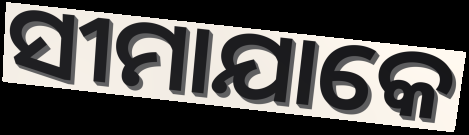
ସୀମାଯାକେ